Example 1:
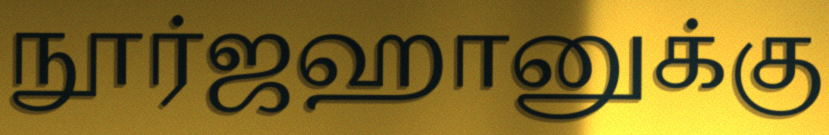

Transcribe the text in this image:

நூர்ஜஹானுக்கு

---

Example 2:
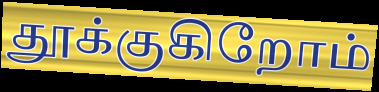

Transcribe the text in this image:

தூக்குகிறோம்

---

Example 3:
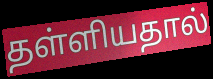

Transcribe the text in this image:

தள்ளியதால்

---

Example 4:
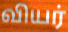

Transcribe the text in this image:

வியர்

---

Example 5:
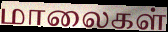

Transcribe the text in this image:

மாலைகள்